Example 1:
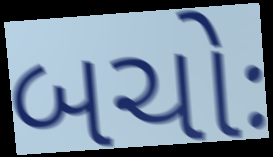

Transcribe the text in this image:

બચોઃ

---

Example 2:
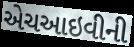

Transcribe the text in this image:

એચઆઇવીની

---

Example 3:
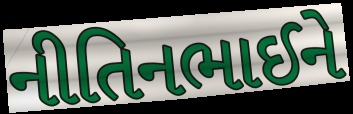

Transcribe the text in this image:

નીતિનભાઈને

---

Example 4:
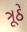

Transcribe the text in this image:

ત્રૂઠે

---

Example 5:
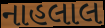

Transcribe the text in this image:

નાહલાલ